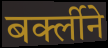
बर्क्लीने